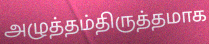
அழுத்தம்திருத்தமாக